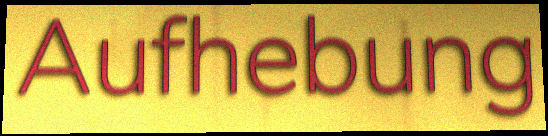
Aufhebung